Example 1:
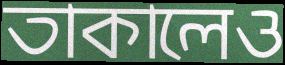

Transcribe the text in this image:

তাকালেও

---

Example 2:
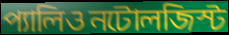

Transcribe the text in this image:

প্যালিওনটোলজিস্ট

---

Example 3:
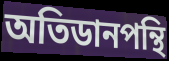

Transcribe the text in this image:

অতিডানপন্থি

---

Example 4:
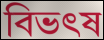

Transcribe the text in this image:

বিভৎষ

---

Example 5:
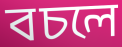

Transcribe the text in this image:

বচলে